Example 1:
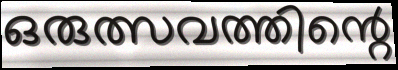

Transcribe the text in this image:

ഒരുത്സവത്തിന്റെ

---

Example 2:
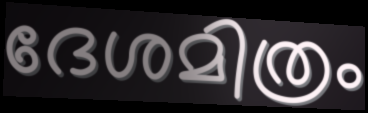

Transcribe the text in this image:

ദേശമിത്രം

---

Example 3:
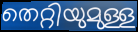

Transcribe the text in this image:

തെറ്റിയുമുള്ള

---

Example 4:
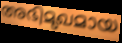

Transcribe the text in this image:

അഭിമുഖമായ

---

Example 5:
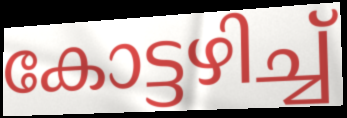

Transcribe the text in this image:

കോട്ടഴിച്ച്